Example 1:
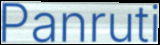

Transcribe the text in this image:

Panruti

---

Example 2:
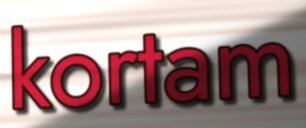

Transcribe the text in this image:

kortam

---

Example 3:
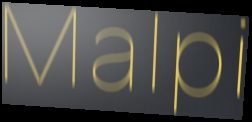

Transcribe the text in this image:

Malpi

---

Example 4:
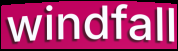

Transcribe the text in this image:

windfall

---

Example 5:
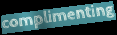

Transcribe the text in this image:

complimenting